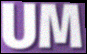
UM